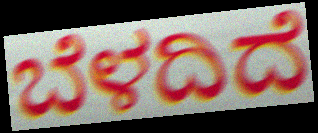
ಬೆಳದಿದೆ